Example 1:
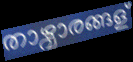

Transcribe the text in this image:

താഴ്വാരങ്ങള്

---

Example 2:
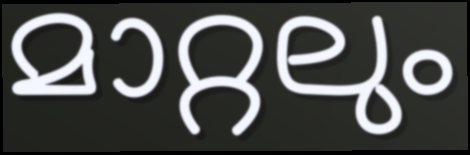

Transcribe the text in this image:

മാറ്റലും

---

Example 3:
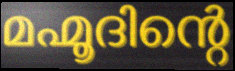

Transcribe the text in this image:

മഹ്മൂദിന്റെ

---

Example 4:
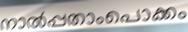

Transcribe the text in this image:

നാൽപ്പതാംപൊക്കം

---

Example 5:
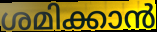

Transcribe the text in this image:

ശമിക്കാൻ